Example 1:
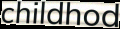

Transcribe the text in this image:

childhod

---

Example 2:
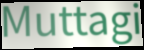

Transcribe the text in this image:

Muttagi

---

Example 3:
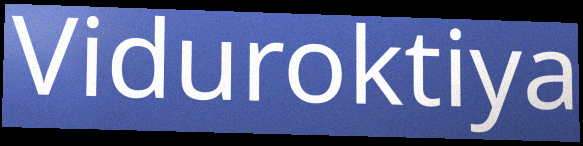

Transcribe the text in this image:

Viduroktiya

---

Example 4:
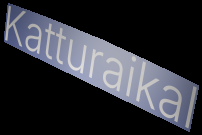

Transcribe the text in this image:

Katturaikal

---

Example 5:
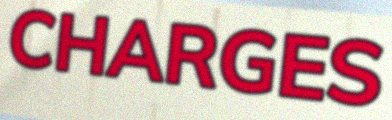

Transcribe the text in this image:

CHARGES